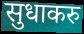
सुधाकरु